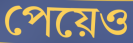
পেয়েও